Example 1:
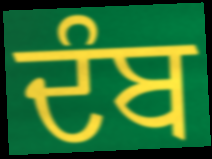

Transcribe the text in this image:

ਦੰਬ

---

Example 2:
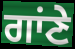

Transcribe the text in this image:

ਗਾਂਣੇ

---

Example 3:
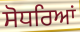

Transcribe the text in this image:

ਸੋਧਰਿਆਂ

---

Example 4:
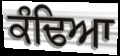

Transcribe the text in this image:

ਕੰਢਿਆ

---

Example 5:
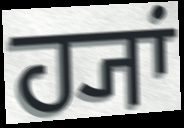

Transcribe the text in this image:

ਹ੍ਯਾਂ